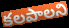
కలపాలని